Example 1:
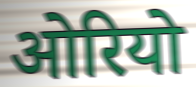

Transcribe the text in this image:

ओरियो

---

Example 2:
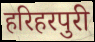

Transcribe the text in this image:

हरिहरपुरी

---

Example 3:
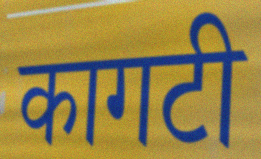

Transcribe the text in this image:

कागटी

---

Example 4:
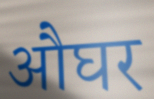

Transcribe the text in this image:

औघर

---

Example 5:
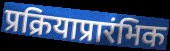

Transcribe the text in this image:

प्रक्रियाप्रारंभिक